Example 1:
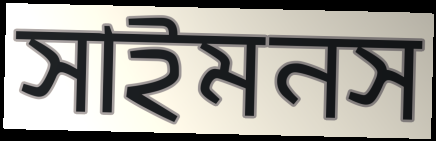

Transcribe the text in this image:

সাইমনস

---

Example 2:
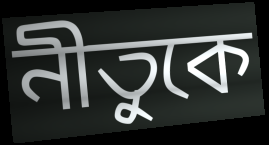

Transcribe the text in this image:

নীতুকে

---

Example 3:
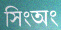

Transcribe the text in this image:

সিংঅং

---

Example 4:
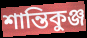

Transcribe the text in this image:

শান্তিকুঞ্জ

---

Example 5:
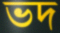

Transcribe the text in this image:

ভদ